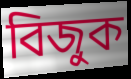
বিজুক